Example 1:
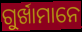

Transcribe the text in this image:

ଗୁର୍ଖାମାନେ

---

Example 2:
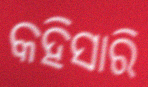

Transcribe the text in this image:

କହିସାରି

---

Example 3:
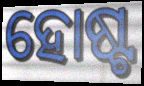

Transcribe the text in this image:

ହୋଷ୍ଟ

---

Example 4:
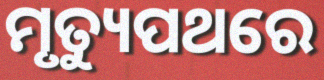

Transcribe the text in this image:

ମୃତ୍ୟୁପଥରେ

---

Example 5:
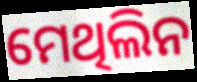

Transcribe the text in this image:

ମେଥିଲିନ